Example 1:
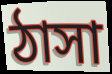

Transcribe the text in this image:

ঠাসা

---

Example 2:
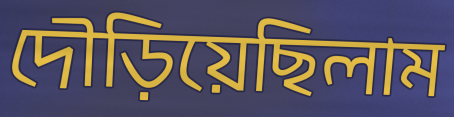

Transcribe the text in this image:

দৌড়িয়েছিলাম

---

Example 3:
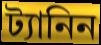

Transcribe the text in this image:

ট্যানিন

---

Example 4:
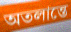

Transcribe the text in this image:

অতলান্তে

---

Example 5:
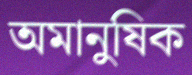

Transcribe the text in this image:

অমানুষিক